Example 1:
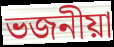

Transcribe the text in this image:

ভজনীয়া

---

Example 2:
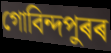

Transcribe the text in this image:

গোবিন্দপুৰৰ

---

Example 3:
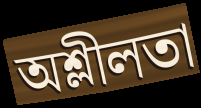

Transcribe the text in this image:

অশ্লীলতা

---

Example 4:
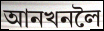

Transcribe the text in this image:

আনখনলৈ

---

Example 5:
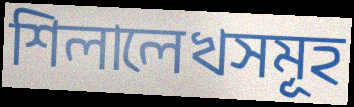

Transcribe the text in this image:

শিলালেখসমূহ